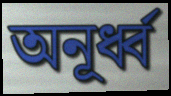
অনূর্ধ্ব